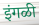
इंगळी